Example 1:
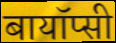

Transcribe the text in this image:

बायॉप्सी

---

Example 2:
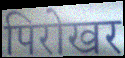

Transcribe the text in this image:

पिरोखर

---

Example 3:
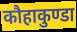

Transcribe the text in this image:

कौहाकुण्डा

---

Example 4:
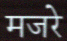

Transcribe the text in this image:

मजरे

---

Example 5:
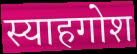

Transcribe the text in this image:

स्याहगोश